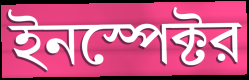
ইনস্পেক্টর